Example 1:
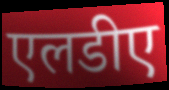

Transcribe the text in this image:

एलडीए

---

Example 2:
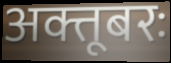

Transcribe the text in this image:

अक्तूबरः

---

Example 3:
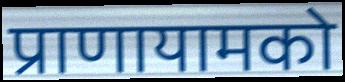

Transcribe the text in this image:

प्राणायामको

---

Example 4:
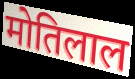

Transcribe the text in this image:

मोतिलाल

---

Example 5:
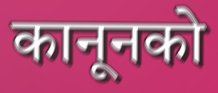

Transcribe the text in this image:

कानूनको